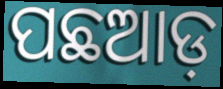
ପଛଆଡ଼